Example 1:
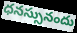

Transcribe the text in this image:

ధనస్సునందు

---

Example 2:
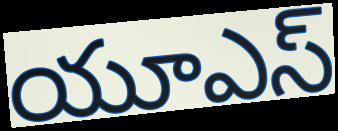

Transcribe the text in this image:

యూఎస్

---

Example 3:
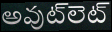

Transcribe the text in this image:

అవుట్‌లెట్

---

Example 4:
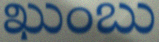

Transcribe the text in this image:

ఖుంబు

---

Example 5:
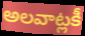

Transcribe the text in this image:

అలవాట్లకీ